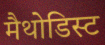
मैथोडिस्ट